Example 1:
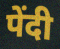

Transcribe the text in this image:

पेंदी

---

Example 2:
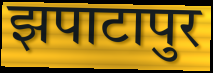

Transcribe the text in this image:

झपाटापुर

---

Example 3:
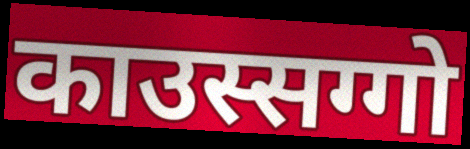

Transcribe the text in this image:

काउस्सग्गो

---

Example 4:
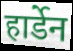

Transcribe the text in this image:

हार्डेन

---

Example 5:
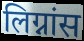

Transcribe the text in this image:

लिग्नांस